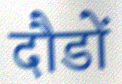
दौडों